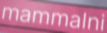
mammalni